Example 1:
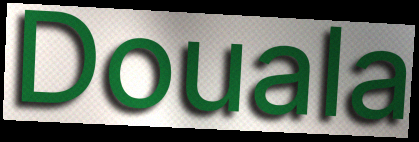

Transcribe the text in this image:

Douala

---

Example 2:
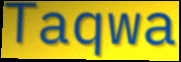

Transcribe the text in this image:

Taqwa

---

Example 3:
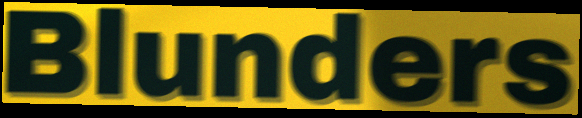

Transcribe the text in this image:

Blunders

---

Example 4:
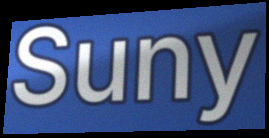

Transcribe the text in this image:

Suny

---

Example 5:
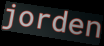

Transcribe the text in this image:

jorden